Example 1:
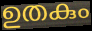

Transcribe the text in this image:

ഉതകും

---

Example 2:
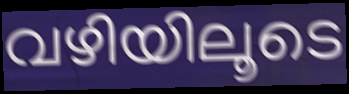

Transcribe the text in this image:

വഴിയിലൂടെ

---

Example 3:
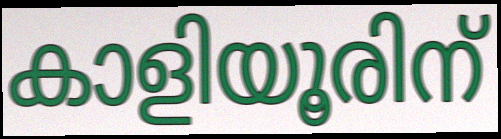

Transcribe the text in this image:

കാളിയൂരിന്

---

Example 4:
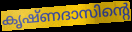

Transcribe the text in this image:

കൃഷ്ണദാസിന്റെ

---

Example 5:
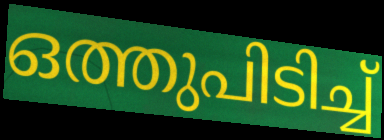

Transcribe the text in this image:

ഒത്തുപിടിച്ച്